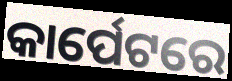
କାର୍ପେଟରେ